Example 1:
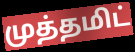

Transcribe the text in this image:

முத்தமிட்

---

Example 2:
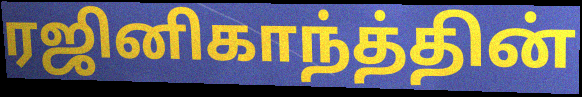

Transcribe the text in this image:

ரஜினிகாந்த்தின்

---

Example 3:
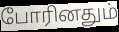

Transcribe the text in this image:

போரினதும்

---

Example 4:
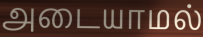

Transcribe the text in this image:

அடையாமல்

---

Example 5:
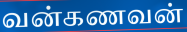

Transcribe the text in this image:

வன்கணவன்